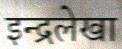
इन्द्रलेखा